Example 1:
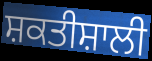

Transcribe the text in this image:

ਸ਼ਕਤੀਸ਼ਾਲੀ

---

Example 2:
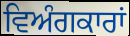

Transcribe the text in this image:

ਵਿਅੰਗਕਾਰਾਂ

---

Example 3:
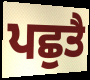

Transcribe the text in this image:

ਪਛੁਤੈ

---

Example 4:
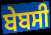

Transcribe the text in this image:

ਬੇਬਸੀ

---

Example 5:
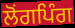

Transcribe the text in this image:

ਲੋਂਗਪਿੰਗ